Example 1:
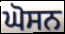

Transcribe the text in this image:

ਘੋਸਨ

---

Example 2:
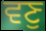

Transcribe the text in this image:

ਵਣੁ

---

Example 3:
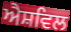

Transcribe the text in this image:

ਐਸ਼ਵਿਲ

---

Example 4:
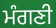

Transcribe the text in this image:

ਮੰਗਣੀ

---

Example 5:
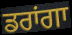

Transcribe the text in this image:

ਡਰਾਂਗਾ